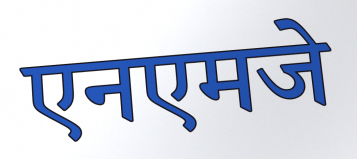
एनएमजे